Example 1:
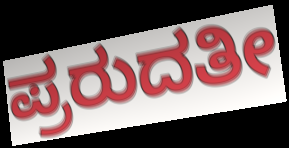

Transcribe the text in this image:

ಪ್ರರುದತೀ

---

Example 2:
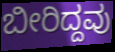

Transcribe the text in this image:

ಬೀರಿದ್ದವು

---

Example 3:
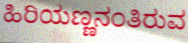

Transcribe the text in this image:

ಹಿರಿಯಣ್ಣನಂತಿರುವ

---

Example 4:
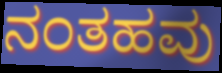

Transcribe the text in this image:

ನಂತಹವು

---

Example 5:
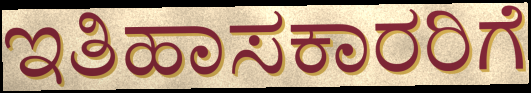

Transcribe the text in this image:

ಇತಿಹಾಸಕಾರರಿಗೆ